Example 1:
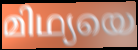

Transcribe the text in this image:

മിഥ്യയെ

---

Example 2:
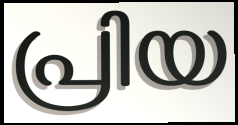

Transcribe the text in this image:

പ്രിയ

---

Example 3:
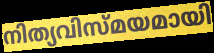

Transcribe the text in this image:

നിത്യവിസ്മയമായി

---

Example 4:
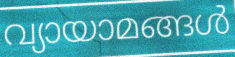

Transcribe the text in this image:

വ്യായാമങ്ങൾ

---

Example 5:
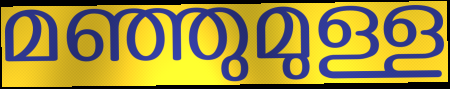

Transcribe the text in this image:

മഞ്ഞുമുള്ള